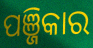
ପଞ୍ଜିକାର